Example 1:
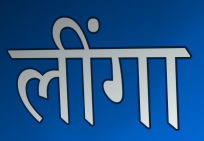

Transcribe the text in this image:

लींगा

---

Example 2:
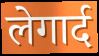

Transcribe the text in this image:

लेगार्द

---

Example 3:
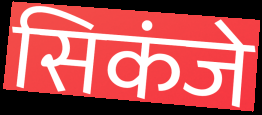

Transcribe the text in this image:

सिकंजे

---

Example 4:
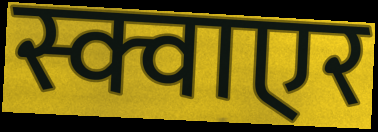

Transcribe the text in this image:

स्क्वाएर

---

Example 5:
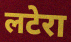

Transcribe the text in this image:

लटेरा